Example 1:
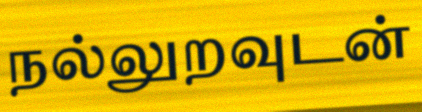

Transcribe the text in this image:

நல்லுறவுடன்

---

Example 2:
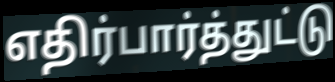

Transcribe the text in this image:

எதிர்பார்த்துட்டு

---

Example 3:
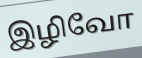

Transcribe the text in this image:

இழிவோ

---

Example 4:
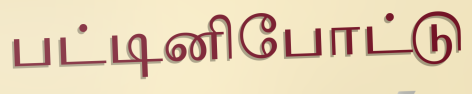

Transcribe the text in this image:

பட்டினிபோட்டு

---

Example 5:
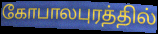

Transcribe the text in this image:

கோபாலபுரத்தில்